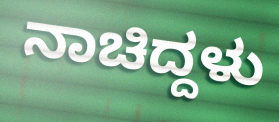
ನಾಚಿದ್ದಳು